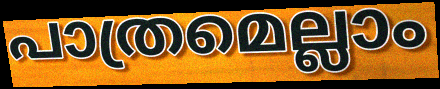
പാത്രമെല്ലാം